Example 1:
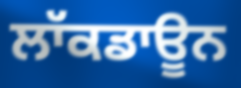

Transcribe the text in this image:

ਲਾੱਕਡਾਊਨ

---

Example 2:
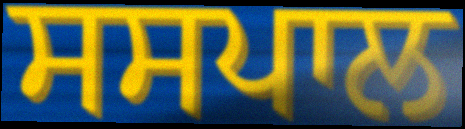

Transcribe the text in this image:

ਸਸਪਾਲ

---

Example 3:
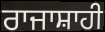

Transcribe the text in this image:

ਰਾਜਾਸ਼ਾਹੀ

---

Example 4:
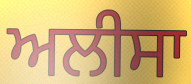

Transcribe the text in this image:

ਅਲੀਸਾ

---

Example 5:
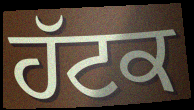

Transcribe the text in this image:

ਹੱਟਕ